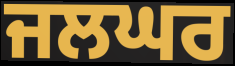
ਜਲਘਰ